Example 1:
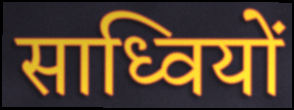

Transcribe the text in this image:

साध्वियों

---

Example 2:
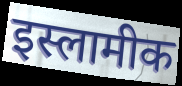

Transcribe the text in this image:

इस्लामीक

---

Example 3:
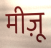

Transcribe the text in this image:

मीज़ू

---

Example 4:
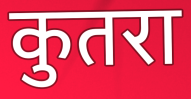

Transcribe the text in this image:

कुतरा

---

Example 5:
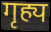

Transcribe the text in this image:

गृह्य